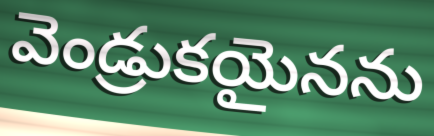
వెండ్రుకయైనను